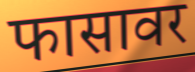
फासावर